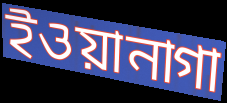
ইওয়ানাগা